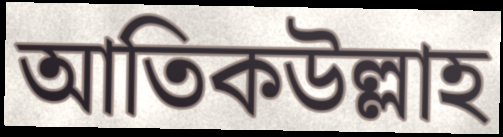
আতিকউল্লাহ